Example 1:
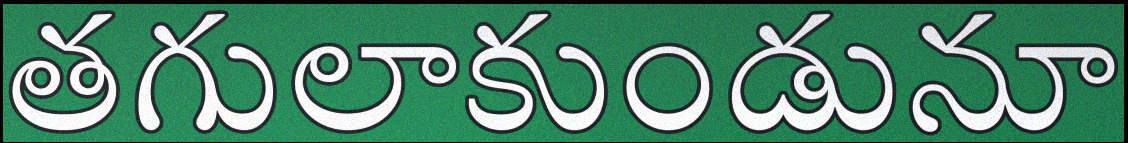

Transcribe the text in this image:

తగులాకుండునూ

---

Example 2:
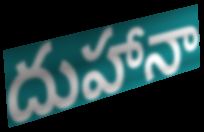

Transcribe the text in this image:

దుహానా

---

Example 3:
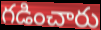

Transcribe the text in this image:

గడించారు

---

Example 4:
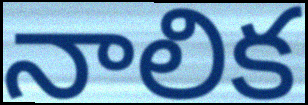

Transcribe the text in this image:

నాలిక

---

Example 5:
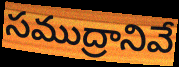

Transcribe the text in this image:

సముద్రానివే